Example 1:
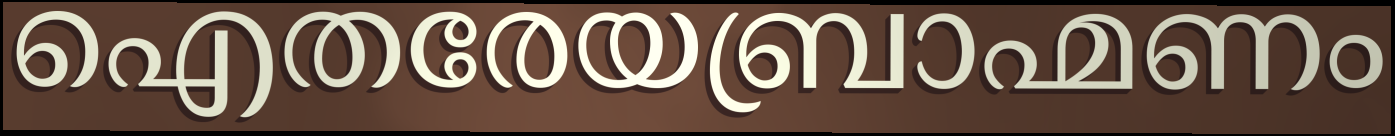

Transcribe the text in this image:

ഐതരേയബ്രാഹ്മണം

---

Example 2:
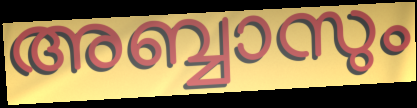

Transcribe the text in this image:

അബ്ബാസും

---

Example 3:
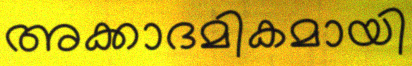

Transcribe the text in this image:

അക്കാദമികമായി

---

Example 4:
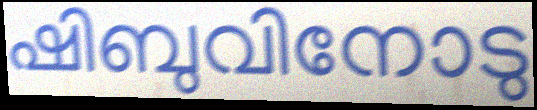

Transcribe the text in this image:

ഷിബുവിനോടു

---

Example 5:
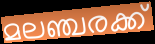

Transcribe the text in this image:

മലഞ്ചരക്ക്